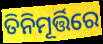
ତିନିମୂର୍ତ୍ତିରେ